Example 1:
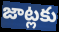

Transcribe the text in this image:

జాట్లకు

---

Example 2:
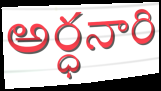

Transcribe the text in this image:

అర్ధనారి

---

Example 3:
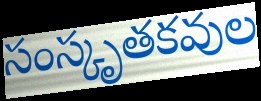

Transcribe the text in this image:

సంస్కృతకవుల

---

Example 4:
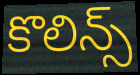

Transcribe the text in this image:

కొలిన్స్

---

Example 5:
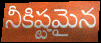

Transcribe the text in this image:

నీకిష్టమైన